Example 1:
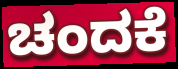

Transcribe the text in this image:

ಚಂದಕೆ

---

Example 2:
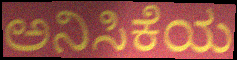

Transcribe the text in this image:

ಅನಿಸಿಕೆಯ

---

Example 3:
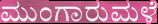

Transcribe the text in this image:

ಮುಂಗಾರುಮಳೆ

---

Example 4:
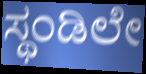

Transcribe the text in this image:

ಸ್ಥಂಡಿಲೇ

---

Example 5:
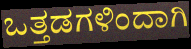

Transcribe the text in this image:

ಒತ್ತಡಗಳಿಂದಾಗಿ